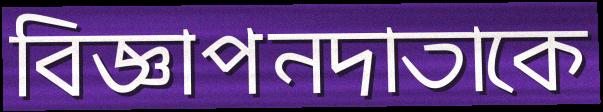
বিজ্ঞাপনদাতাকে